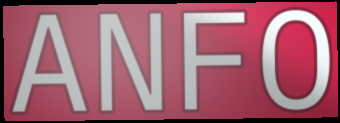
ANFO